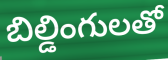
బిల్డింగులతో